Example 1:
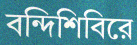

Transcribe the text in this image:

বন্দিশিবিরে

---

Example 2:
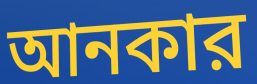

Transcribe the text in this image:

আনকার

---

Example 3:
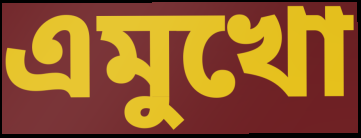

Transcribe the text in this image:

এমুখো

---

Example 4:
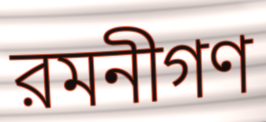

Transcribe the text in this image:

রমনীগণ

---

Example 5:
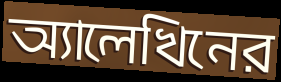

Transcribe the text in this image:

অ্যালেখিনের